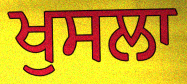
ਖੁਸਲਾ